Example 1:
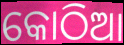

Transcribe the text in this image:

କୋଠିଆ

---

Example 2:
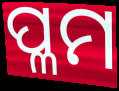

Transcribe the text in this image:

ପ୍ଳମ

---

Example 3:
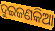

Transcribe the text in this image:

ଦୁଇଜଣକିଆ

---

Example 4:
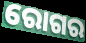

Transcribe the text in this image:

ରୋଗର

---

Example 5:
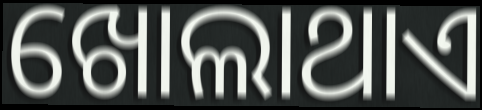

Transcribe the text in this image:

ଖୋଲାଥାଏ